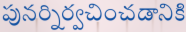
పునర్నిర్వచించడానికి